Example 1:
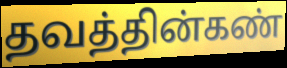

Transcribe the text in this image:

தவத்தின்கண்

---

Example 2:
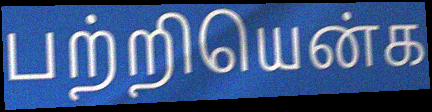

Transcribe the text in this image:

பற்றியென்க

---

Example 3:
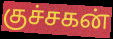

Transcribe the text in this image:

குச்சகன்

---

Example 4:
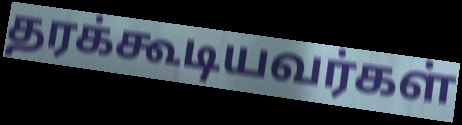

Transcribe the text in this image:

தரக்கூடியவர்கள்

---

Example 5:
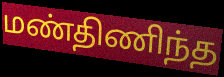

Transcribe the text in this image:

மண்திணிந்த